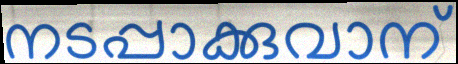
നടപ്പാക്കുവാന്